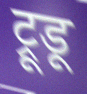
ट्रूडू